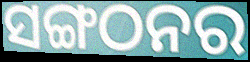
ସଙ୍ଗଠନର